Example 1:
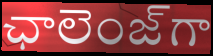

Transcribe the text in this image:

ఛాలెంజ్‌గా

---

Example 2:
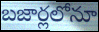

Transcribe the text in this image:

బజార్లలోనూ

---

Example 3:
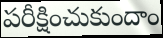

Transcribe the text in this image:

పరీక్షించుకుందాం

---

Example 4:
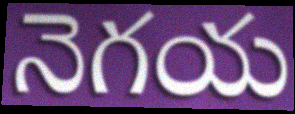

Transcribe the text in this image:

నెగయ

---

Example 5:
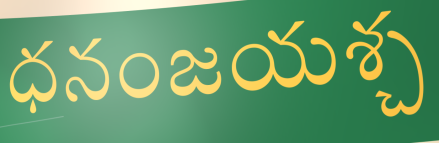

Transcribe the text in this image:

ధనంజయశ్చ